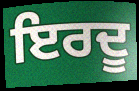
ਇਰਦੂ